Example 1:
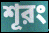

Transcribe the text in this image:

শূরং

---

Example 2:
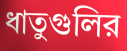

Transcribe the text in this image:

ধাতুগুলির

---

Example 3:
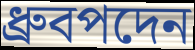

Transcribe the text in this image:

ধ্রুবপদেন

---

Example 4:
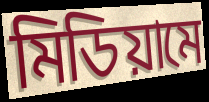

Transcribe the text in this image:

মিডিয়ামে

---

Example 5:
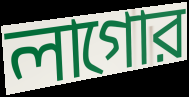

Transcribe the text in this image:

লাগোর